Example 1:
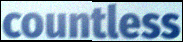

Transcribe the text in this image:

countless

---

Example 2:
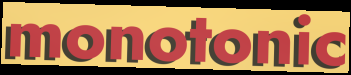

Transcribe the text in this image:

monotonic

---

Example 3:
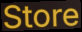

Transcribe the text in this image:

Store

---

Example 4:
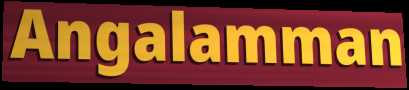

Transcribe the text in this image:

Angalamman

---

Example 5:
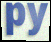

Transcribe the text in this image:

py